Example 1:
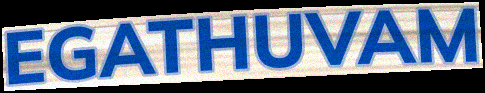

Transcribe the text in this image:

EGATHUVAM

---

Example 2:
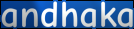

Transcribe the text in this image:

andhaka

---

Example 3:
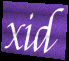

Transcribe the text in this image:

xid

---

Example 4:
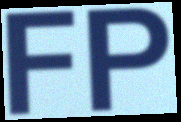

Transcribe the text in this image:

FP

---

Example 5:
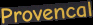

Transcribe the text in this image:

Provencal